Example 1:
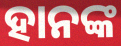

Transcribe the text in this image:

ହାନଙ୍କ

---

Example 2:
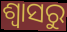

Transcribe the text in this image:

ଶ୍ୱାସରୁ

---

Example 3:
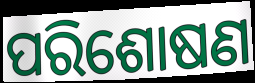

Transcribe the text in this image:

ପରିଶୋଷଣ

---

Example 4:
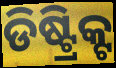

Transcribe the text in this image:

ଡିଷ୍ଟ୍ରିକ୍ଟ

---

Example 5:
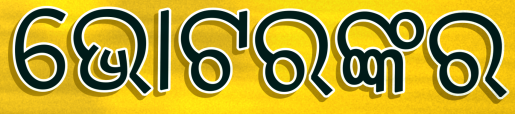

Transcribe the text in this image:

ଭୋଟରଙ୍କର